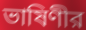
ভাষিণীর